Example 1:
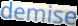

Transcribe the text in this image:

demise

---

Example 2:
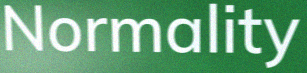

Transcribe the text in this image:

Normality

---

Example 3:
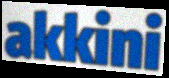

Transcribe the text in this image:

akkini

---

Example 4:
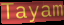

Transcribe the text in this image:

Tayam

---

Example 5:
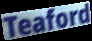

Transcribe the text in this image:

Teaford